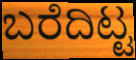
ಬರೆದಿಟ್ಟ